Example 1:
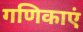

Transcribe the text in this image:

गणिकाएं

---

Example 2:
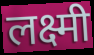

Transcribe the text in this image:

लक्ष्मी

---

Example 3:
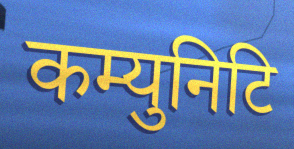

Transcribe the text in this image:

कम्युनिटि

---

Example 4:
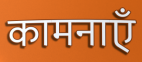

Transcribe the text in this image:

कामनाएँ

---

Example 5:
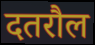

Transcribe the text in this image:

दतरौल